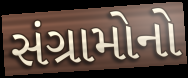
સંગ્રામોનો